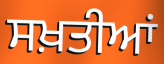
ਸਖ਼ਤੀਆਂ